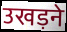
उखड़ने